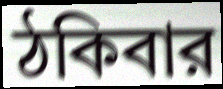
ঠকিবার